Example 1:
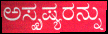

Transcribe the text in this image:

ಅಸ್ಪೃಷ್ಯರನ್ನು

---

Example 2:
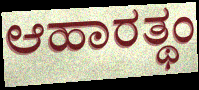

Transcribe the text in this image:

ಆಹಾರತ್ಥಂ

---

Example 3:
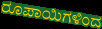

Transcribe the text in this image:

ರೂಪಾಯಿಗಳಿಂದ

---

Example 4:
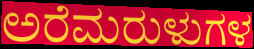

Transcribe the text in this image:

ಅರೆಮರುಳುಗಳ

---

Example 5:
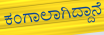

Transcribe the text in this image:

ಕಂಗಾಲಾಗಿದ್ದಾನೆ